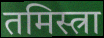
तमिस्त्रा